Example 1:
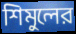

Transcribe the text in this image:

শিমুলের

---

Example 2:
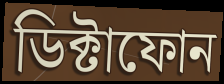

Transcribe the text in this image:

ডিক্টাফোন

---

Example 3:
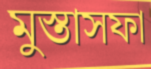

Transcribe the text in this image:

মুস্তাসফা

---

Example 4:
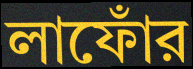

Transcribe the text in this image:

লাফোঁর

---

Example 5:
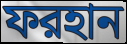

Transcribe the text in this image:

ফরহান